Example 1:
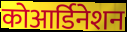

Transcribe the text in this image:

कोआर्डिनेशन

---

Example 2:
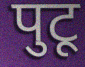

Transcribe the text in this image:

पुटू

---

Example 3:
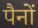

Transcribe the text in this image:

पैनों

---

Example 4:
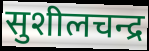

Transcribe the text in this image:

सुशीलचन्द्र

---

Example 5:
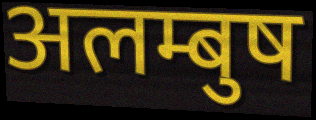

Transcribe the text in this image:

अलम्बुष